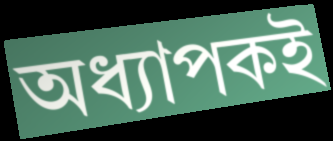
অধ্যাপকই